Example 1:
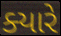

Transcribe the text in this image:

ક્‍યારે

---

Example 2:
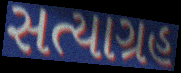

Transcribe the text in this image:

સત્‍યાગ્રહ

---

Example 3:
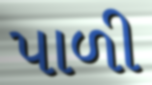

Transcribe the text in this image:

પાળી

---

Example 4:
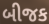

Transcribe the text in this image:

બીજક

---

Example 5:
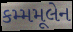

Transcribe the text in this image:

કમ્મમૂલેન